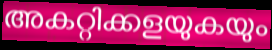
അകറ്റിക്കളയുകയും